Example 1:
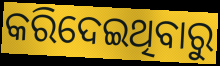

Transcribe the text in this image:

କରିଦେଇଥିବାରୁ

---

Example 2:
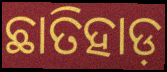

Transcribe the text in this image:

ଛାତିହାଡ଼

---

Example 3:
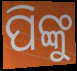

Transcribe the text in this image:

ପିଙ୍କୁ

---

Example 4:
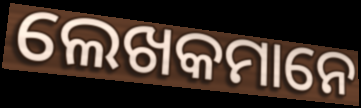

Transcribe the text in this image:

ଲେଖକମାନେ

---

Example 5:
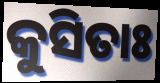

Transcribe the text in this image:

କୁସିତାଃ